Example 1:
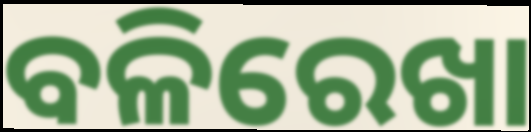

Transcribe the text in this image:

ବଳିରେଖା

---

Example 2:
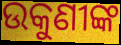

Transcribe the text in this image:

ଉକୁଣୀଙ୍କ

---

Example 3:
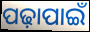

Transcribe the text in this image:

ପଢ଼ାପାଇଁ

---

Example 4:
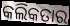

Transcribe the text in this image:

କଲିକତାର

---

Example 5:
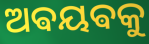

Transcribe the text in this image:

ଅଵୟଵକୁ